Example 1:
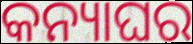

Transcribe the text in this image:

କନ୍ୟାଘର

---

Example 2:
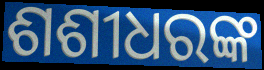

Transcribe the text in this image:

ଶଶୀଧରଙ୍କ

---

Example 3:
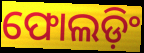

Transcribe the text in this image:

ଫୋଲଡ଼ିଂ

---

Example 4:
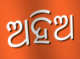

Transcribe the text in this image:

ଅହିଅ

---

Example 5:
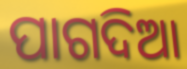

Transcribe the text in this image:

ପାଗଦିଆ